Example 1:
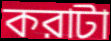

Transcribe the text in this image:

করাটা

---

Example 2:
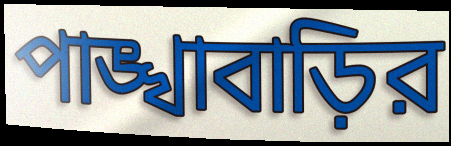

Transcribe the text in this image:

পাঙ্খাবাড়ির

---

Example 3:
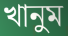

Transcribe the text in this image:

খানুম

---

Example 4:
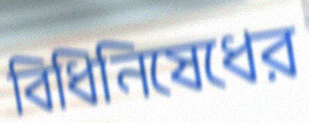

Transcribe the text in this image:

বিধিনিষেধের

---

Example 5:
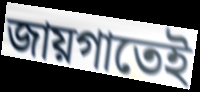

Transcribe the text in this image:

জায়গাতেই